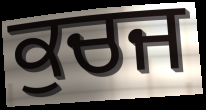
ਕੁਚਜ